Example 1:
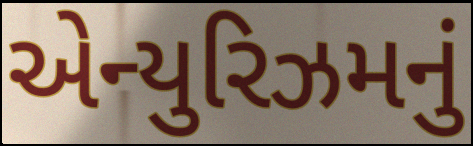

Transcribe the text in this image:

એન્યુરિઝમનું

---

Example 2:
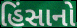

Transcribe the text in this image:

હિંસાનો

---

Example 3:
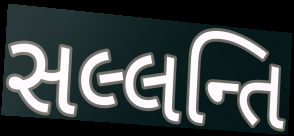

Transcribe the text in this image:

સલ્લન્તિ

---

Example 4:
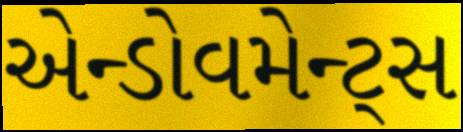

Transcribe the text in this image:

એન્ડોવમેન્ટ્સ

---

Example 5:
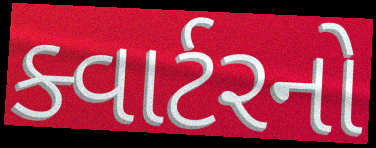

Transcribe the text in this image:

ક્વાર્ટરનો